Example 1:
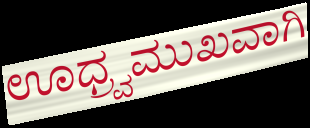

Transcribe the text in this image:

ಊಧ್ರ್ವಮುಖವಾಗಿ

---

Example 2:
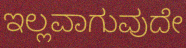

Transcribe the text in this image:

ಇಲ್ಲವಾಗುವುದೇ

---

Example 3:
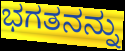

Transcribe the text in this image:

ಭಗತನನ್ನು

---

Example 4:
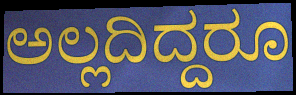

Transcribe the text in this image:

ಅಲ್ಲದಿದ್ದರೂ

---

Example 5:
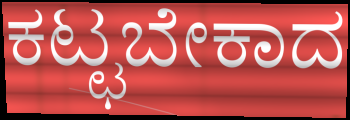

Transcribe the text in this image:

ಕಟ್ಟಬೇಕಾದ